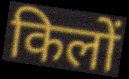
किलों